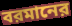
বরমানের